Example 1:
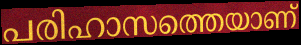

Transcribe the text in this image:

പരിഹാസത്തെയാണ്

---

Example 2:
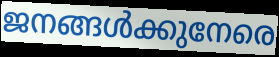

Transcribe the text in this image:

ജനങ്ങൾക്കുനേരെ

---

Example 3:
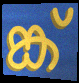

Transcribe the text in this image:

ങ്ക്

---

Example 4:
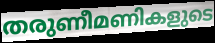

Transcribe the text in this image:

തരുണീമണികളുടെ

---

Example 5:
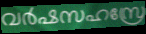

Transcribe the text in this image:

വർഷസഹസ്രേ